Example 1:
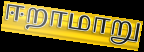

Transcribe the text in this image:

ஈறாமாறு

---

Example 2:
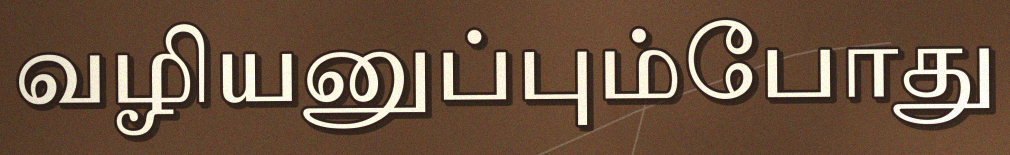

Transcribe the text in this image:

வழியனுப்பும்போது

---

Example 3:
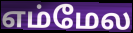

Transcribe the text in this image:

எம்மேல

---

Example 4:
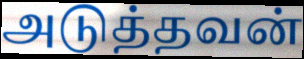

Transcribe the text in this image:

அடுத்தவன்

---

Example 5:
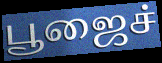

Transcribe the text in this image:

பூஜைச்